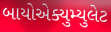
બાયોએક્યુમ્યુલેટ